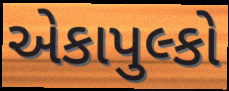
એકાપુલ્કો